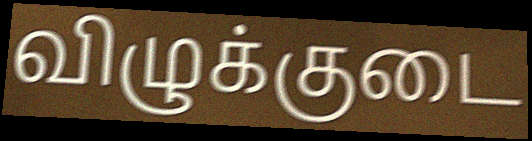
விழுக்குடை